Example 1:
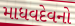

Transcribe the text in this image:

માધવદેવનો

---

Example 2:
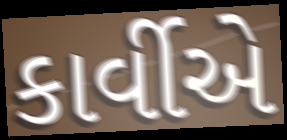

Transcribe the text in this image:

કાર્વીએ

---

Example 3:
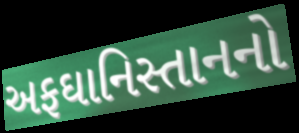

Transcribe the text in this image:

અફઘાનિસ્તાનનો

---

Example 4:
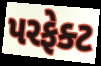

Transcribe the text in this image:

પરફેક્ટ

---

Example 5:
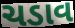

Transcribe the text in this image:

ચડાવ